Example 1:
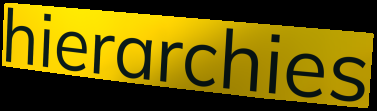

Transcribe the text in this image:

hierarchies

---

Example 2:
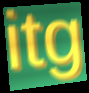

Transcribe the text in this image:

itg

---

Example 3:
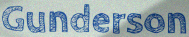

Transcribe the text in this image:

Gunderson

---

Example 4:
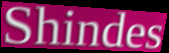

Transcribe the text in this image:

Shindes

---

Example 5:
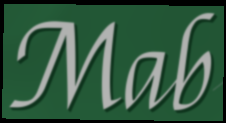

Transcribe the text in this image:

Mab